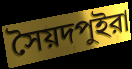
সৈয়দপুইরা